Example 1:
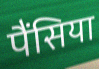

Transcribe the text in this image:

पैंसिया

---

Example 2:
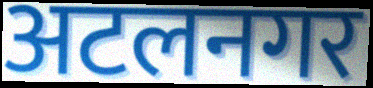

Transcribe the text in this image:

अटलनगर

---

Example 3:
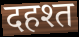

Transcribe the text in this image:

दहश्त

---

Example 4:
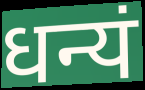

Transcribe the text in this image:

धन्यं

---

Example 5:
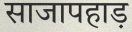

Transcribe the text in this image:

साजापहाड़